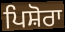
ਪਿਸ਼ੋਰਾ